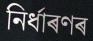
নিৰ্ধাৰণৰ